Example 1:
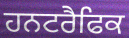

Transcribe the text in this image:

ਹਨਟਰੈਫਿਕ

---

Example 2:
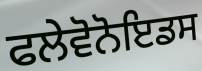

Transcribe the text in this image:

ਫਲੇਵੋਨੋਇਡਸ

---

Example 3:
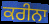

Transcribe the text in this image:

ਕਰੀਨਾ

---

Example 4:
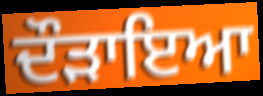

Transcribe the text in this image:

ਦੌੜਾਇਆ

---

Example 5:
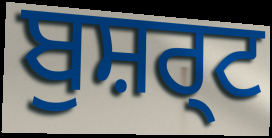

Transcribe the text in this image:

ਬੁਸ਼ਰ੍ਟ